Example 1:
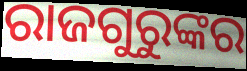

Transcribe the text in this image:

ରାଜଗୁରୁଙ୍କର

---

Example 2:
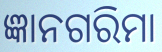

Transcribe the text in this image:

ଜ୍ଞାନଗରିମା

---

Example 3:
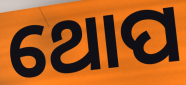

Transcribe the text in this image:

ଥୋପ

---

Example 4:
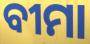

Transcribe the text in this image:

ବୀମା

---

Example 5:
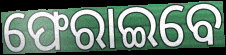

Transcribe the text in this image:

ଫେରାଇବେ